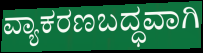
ವ್ಯಾಕರಣಬದ್ಧವಾಗಿ